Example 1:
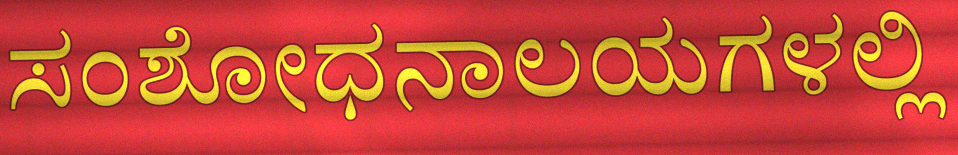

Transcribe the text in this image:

ಸಂಶೋಧನಾಲಯಗಳಲ್ಲಿ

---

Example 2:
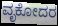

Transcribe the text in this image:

ವೃಕೋದರ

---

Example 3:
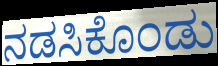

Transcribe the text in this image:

ನಡಸಿಕೊಂಡು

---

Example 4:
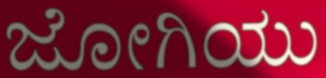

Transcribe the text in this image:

ಜೋಗಿಯು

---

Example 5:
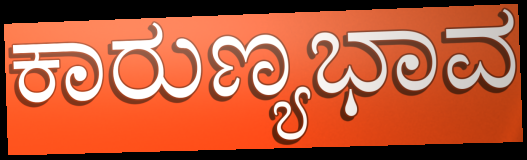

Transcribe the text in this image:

ಕಾರುಣ್ಯಭಾವ